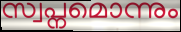
സ്വപ്നമൊന്നും